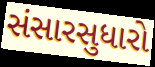
સંસારસુધારો